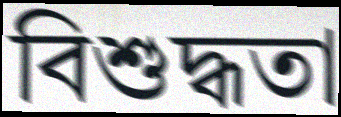
বিশুদ্ধতা